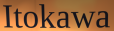
Itokawa